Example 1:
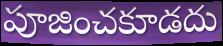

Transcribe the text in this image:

పూజించకూడదు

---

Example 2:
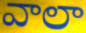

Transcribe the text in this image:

వాలా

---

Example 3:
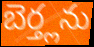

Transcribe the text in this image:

బెర్త్లను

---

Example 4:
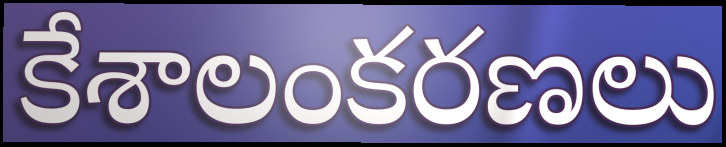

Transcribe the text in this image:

కేశాలంకరణలు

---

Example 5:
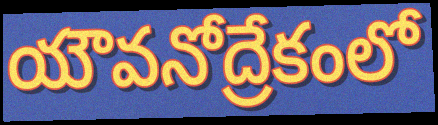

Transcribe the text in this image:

యౌవనోద్రేకంలో